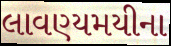
લાવણ્યમયીના